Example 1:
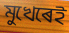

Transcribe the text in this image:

মুখেৰেই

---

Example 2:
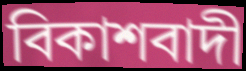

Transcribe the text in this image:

বিকাশবাদী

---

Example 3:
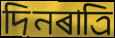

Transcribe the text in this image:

দিনৰাত্ৰি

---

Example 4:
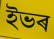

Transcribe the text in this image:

ইভৰ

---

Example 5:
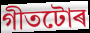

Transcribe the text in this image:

গীতটোৰ